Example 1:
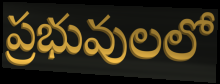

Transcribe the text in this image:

ప్రభువులలో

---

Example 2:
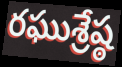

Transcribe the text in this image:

రఘుశ్రేష్ఠ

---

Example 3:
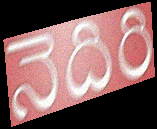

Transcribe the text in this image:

నెదిరి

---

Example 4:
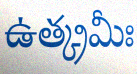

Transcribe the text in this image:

ఉత్క్రమీః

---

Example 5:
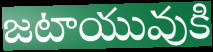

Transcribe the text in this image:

జటాయువుకి